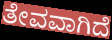
ತೇವವಾಗಿದೆ